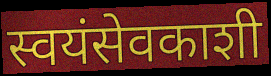
स्वयंसेवकाशी